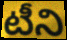
టీని